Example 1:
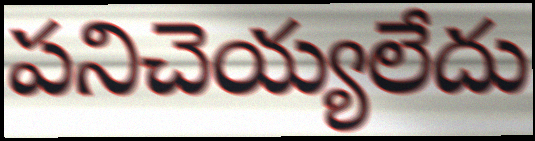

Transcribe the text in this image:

పనిచెయ్యలేదు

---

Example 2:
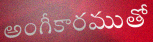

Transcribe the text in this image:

అంగీకారముతో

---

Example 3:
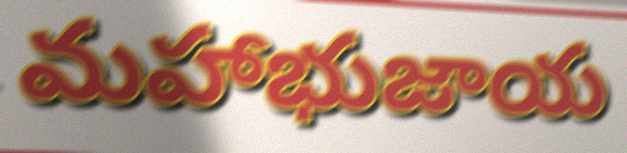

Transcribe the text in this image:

మహాభుజాయ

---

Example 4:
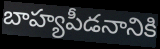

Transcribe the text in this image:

బాహ్యపీడనానికి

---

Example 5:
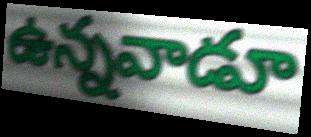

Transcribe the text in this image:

ఉన్నవాడూ